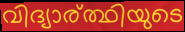
വിദ്യാര്ത്ഥിയുടെ